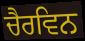
ਚੈਰਵਿਨ